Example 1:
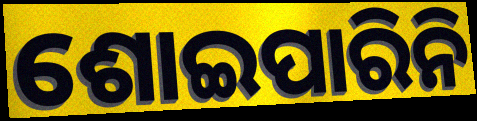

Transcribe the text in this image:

ଶୋଇପାରିନି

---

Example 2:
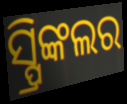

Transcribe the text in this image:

ସ୍ପ୍ରିଙ୍କଲର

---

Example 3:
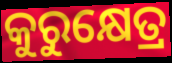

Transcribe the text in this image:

କୁରୁକ୍ଷେତ୍ର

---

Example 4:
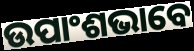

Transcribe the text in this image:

ଉପାଂଶଭାବେ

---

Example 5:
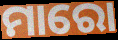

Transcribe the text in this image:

ମାରୋ